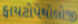
ફાયટોપેથોલોજી